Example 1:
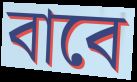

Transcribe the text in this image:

বাবে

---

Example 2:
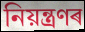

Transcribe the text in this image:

নিয়ন্ত্ৰণৰ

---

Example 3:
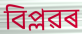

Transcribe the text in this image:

বিপ্লৱৰ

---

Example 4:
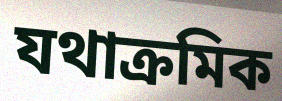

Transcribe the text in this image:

যথাক্ৰমিক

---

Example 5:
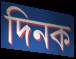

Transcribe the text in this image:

দিনক